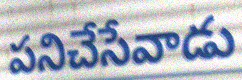
పనిచేసేవాడు